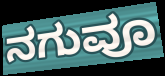
ನಗುವೂ